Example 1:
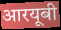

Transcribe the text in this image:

आरयूबी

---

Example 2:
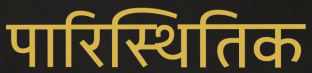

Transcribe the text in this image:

पारिस्थितिक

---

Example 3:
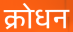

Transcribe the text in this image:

क्रोधन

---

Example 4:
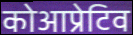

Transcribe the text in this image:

कोआप्रेटिव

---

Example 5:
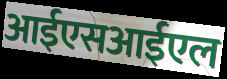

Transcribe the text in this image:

आईएसआईएल